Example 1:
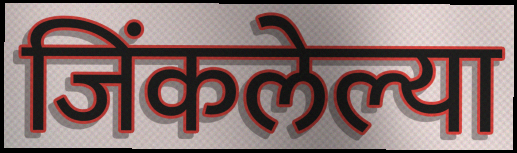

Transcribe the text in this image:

जिंकलेल्या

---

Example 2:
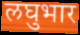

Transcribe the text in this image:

लघुभार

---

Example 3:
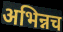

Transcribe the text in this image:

अभिन्नच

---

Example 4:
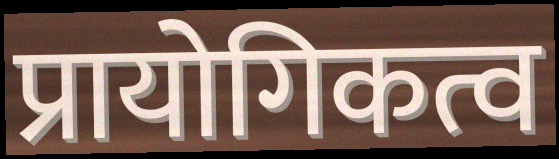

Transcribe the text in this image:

प्रायोगिकत्व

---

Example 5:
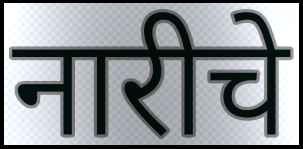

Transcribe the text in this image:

नारीचे